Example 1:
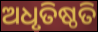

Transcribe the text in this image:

ଅଧୃତିଷ୍ଠତି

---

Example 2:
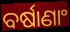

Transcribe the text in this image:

ବର୍ଷାଣାଂ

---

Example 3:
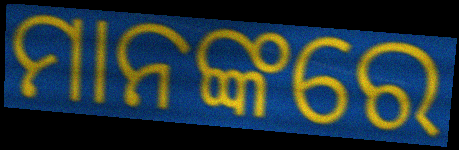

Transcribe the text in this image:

ମାନଙ୍କରେ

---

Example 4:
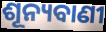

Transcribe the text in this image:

ଶୂନ୍ୟବାଣୀ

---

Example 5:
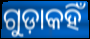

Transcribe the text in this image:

ଗୁଡ଼ାକହିଁ